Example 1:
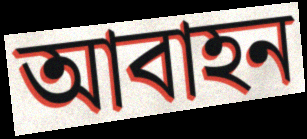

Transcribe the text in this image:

আবাহন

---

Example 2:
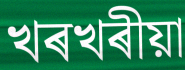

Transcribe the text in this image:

খৰখৰীয়া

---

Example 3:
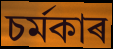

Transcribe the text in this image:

চৰ্মকাৰ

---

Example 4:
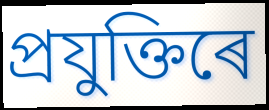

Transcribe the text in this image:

প্ৰযুক্তিৰে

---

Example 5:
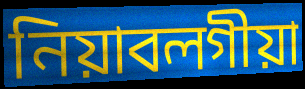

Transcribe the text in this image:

নিয়াবলগীয়া